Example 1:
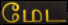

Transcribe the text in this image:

மேட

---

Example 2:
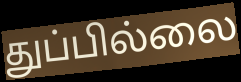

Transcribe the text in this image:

துப்பில்லை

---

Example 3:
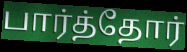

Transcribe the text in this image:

பார்த்தோர்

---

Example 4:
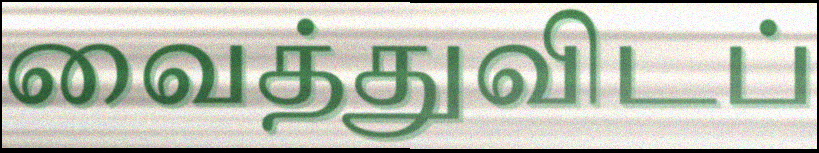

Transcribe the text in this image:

வைத்துவிடப்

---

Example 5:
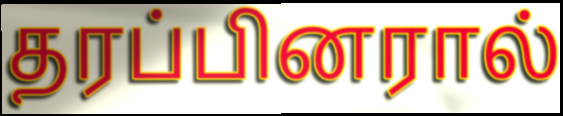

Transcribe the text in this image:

தரப்பினரால்